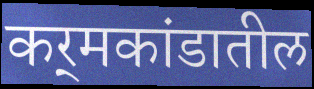
कर्मकांडातील